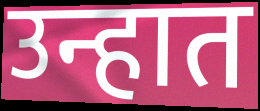
उन्हात